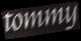
tommy